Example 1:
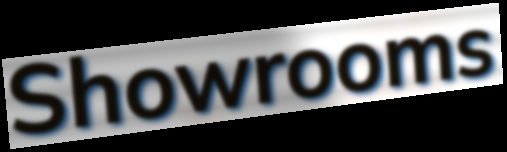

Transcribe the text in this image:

Showrooms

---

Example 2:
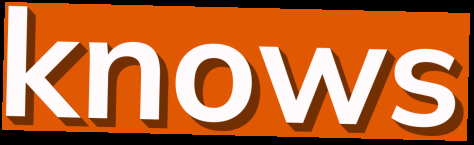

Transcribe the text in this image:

knows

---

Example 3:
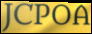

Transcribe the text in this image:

JCPOA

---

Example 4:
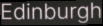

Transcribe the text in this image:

Edinburgh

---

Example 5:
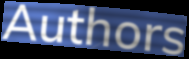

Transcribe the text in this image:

Authors